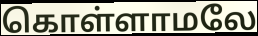
கொள்ளாமலே